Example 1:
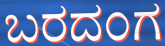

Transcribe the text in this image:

ಬರದಂಗ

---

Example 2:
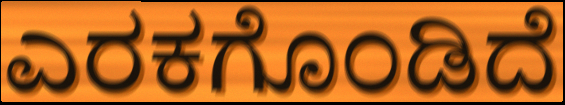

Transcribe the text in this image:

ಎರಕಗೊಂಡಿದೆ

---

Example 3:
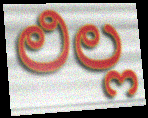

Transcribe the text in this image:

ಲಿಲ್ಲ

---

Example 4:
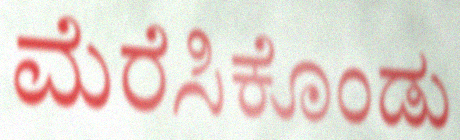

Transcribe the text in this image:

ಮೆರೆಸಿಕೊಂಡು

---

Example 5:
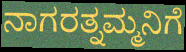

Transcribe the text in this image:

ನಾಗರತ್ನಮ್ಮನಿಗೆ